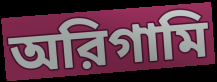
অরিগামি